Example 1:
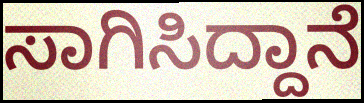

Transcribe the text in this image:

ಸಾಗಿಸಿದ್ದಾನೆ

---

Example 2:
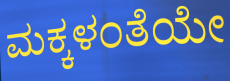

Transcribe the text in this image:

ಮಕ್ಕಳಂತೆಯೇ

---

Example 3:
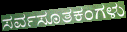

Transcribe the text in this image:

ಸರ್ವಸೂತಕಂಗಳು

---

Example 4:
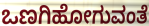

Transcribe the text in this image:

ಒಣಗಿಹೋಗುವಂತೆ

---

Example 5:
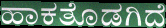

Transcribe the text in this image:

ಹಾಕತೊಡಗಿದೆ